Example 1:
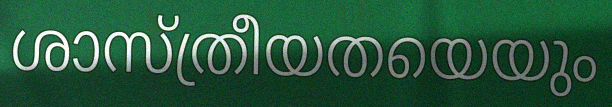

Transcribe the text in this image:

ശാസ്ത്രീയതയെയും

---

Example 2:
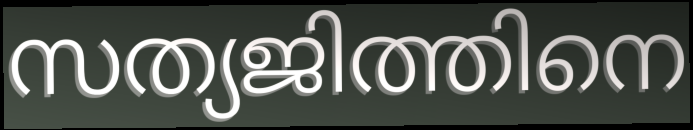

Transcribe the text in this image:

സത്യജിത്തിനെ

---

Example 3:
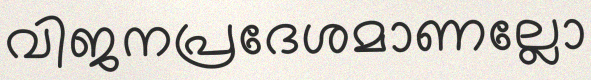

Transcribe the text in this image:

വിജനപ്രദേശമാണല്ലോ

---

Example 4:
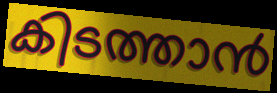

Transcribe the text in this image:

കിടത്താൻ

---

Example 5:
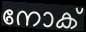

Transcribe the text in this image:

നോക്